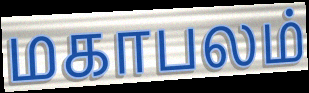
மகாபலம்